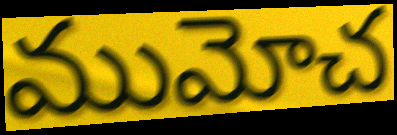
ముమోచ